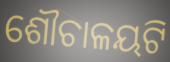
ଶୌଚାଳୟଟି